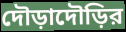
দৌড়াদৌড়ির